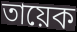
তায়েক